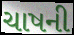
ચાષની